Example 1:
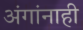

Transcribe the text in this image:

अंगांनाही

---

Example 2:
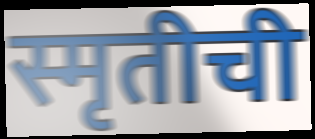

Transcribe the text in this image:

स्मृतीची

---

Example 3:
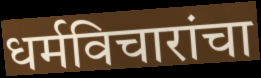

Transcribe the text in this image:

धर्मविचारांचा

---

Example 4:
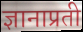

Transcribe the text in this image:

ज्ञानाप्रती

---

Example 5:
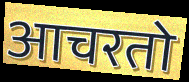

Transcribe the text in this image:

आचरतो